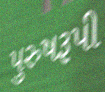
પુરુષરૂપી